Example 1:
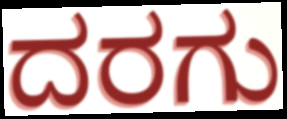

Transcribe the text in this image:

ದರಗು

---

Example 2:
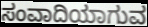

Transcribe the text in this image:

ಸಂವಾದಿಯಾಗುವ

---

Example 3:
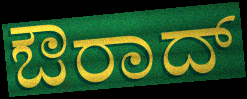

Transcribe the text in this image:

ಔರಾದ್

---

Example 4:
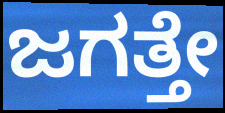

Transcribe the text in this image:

ಜಗತ್ತೇ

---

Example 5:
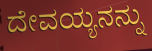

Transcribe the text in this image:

ದೇವಯ್ಯನನ್ನು